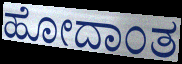
ಹೋದಾಂತ